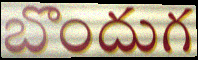
బొందుగ